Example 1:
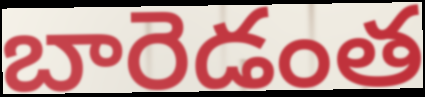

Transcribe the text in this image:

బారెడంత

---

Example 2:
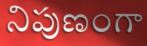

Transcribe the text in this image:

నిపుణంగా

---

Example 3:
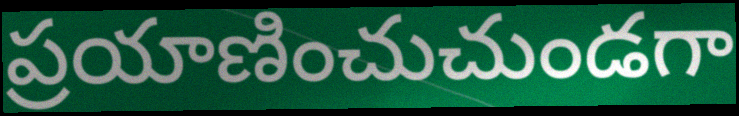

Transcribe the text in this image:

ప్రయాణించుచుండగా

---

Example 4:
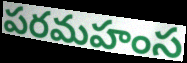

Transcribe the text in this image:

పరమహంస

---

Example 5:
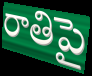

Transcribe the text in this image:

రాతిపై